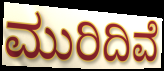
ಮುರಿದಿವೆ